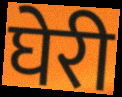
घेरी